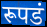
रूपडं